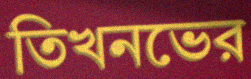
তিখনভের